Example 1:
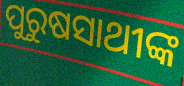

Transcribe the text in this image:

ପୁରୁଷସାଥୀଙ୍କ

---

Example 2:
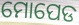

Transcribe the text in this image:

ମୋପେଡ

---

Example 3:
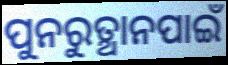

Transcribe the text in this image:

ପୁନରୁତ୍ଥାନପାଇଁ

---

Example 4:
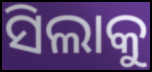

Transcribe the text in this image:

ସିଲାକୁ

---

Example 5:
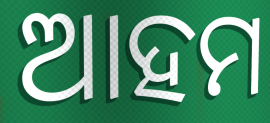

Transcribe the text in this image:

ଆହମ